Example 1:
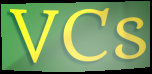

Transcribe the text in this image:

VCs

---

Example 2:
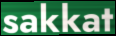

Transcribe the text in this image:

sakkat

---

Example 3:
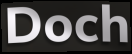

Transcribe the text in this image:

Doch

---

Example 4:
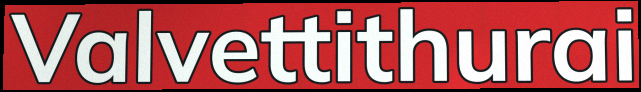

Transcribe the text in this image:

Valvettithurai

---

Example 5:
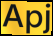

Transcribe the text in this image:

Apj